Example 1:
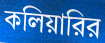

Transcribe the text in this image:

কলিয়ারির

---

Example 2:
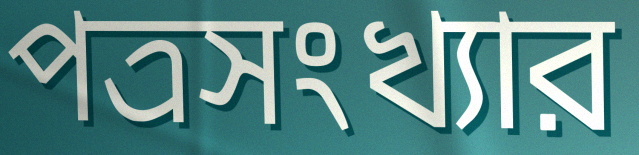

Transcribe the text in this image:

পত্রসংখ্যার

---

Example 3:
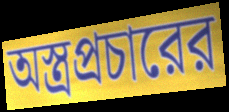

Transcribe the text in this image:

অস্ত্রপ্রচারের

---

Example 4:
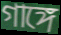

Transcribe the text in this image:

গাঙ্গে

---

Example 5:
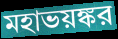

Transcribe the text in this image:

মহাভয়ঙ্কর